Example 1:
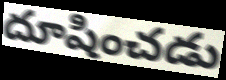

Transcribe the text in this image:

దూషించడు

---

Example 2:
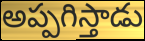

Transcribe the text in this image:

అప్పగిస్తాడు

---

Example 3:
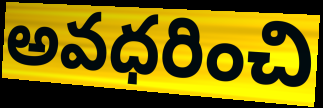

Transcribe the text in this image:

అవధరించి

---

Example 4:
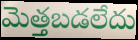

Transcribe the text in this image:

మెత్తబడలేదు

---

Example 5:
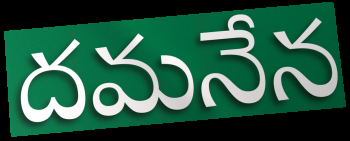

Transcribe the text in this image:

దమనేన